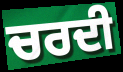
ਚਰਦੀ